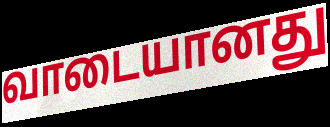
வாடையானது